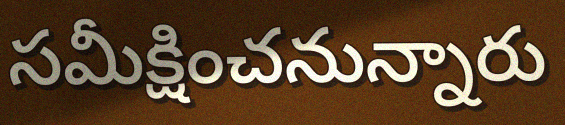
సమీక్షించనున్నారు